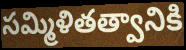
సమ్మిళితత్వానికి